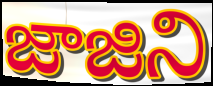
జాజిని